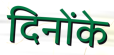
दिनोंके